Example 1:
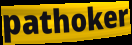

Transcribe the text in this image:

pathoker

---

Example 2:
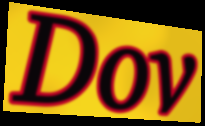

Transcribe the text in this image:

Dov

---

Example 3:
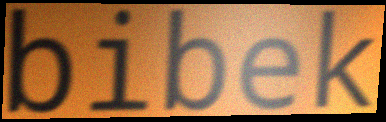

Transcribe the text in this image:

bibek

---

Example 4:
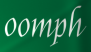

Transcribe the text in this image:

oomph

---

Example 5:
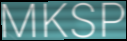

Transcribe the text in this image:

MKSP